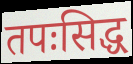
तपःसिद्ध